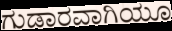
ಗುಡಾರವಾಗಿಯೂ